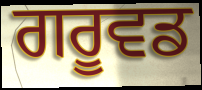
ਗਰੂਵਡ